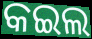
କଇଲ